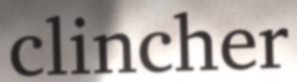
clincher